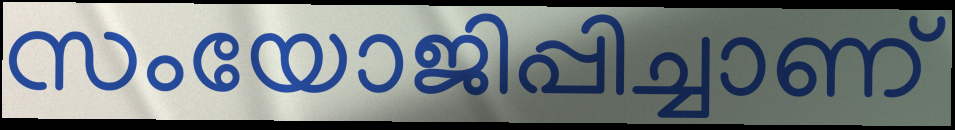
സംയോജിപ്പിച്ചാണ്